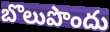
బొలుపొందు